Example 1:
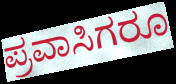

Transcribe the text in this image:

ಪ್ರವಾಸಿಗರೂ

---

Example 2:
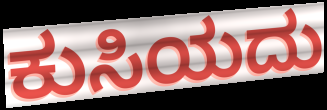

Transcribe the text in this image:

ಕುಸಿಯದು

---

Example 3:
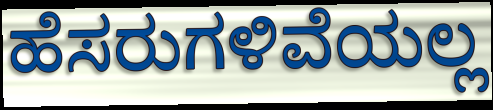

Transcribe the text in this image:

ಹೆಸರುಗಳಿವೆಯಲ್ಲ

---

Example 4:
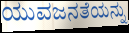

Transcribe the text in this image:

ಯುವಜನತೆಯನ್ನು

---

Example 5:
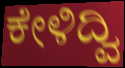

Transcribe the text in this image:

ಕೇಳಿದ್ವಿ